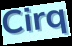
Cirq